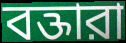
বক্তারা